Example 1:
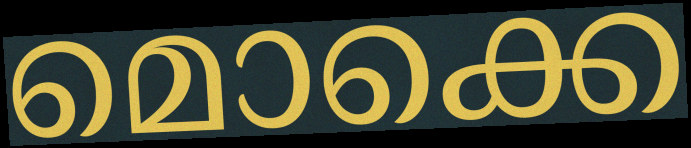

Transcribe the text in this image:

മൊക്കെ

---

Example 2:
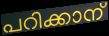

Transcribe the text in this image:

പറിക്കാന്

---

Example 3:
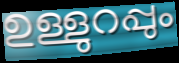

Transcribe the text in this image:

ഉള്ളുറപ്പും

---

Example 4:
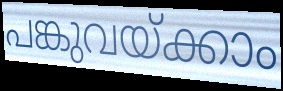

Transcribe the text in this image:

പങ്കുവയ്ക്കാം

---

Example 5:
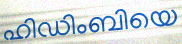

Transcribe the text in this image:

ഹിഡിംബിയെ